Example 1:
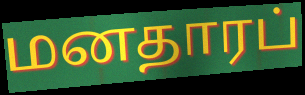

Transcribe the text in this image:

மனதாரப்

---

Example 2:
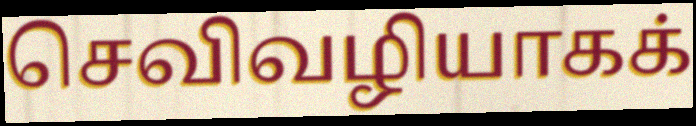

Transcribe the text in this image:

செவிவழியாகக்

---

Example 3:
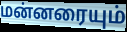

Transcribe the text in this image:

மன்னரையும்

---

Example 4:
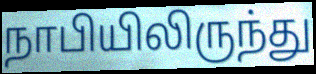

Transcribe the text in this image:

நாபியிலிருந்து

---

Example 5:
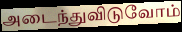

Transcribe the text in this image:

அடைந்துவிடுவோம்